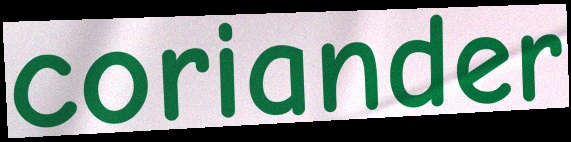
coriander